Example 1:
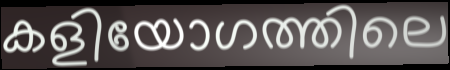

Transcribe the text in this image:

കളിയോഗത്തിലെ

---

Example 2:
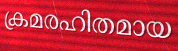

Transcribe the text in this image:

ക്രമരഹിതമായ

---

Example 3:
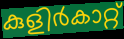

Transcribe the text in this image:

കുളിർകാറ്റ്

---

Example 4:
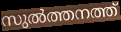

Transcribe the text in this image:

സുൽത്തനത്ത്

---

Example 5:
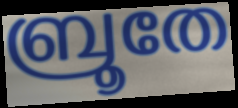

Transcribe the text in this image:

ബ്രൂതേ